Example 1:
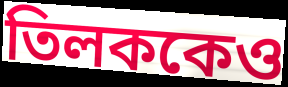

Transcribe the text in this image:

তিলককেও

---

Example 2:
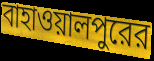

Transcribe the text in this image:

বাহাওয়ালপুরের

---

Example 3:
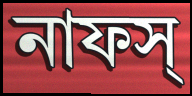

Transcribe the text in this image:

নাফস্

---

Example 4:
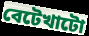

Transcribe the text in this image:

বেটেখাটো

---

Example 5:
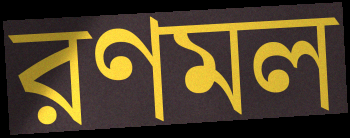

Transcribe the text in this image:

রণমল